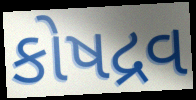
કોષદ્રવ